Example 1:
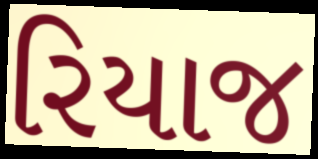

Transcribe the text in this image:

રિયાજ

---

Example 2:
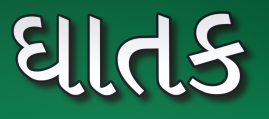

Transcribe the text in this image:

ઘાતક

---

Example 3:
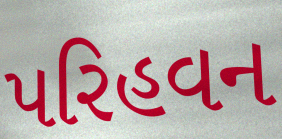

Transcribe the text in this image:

પરિહવન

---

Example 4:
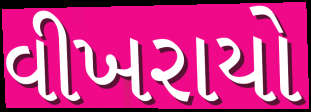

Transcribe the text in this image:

વીખરાયો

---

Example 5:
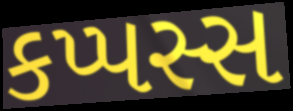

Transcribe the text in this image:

કપ્પસ્સ